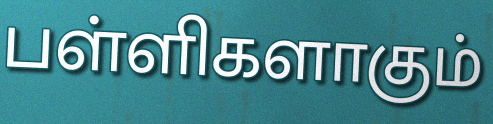
பள்ளிகளாகும்